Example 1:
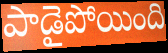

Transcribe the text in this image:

పాడైపోయింది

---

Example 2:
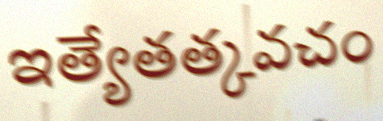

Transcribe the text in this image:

ఇత్యేతత్కవచం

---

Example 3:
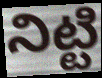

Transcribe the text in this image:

నిట్టి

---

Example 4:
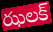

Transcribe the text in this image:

ఝలక్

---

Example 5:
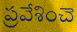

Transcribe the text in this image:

ప్రవేశించె